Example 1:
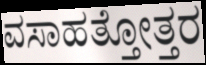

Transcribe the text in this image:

ವಸಾಹತ್ತೋತ್ತರ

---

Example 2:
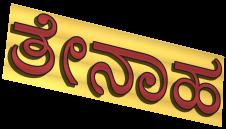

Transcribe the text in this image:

ತೇನಾಹ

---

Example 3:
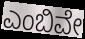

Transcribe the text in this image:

ಎಂಬಿವೇ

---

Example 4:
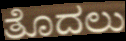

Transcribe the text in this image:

ತೊದಲು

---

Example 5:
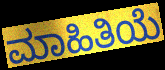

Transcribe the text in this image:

ಮಾಹಿತಿಯೆ